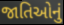
જાતિઓનું